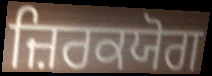
ਜ਼ਿਰਕਯੋਗ